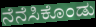
ನೆನೆಸಿಕೊಂಡು